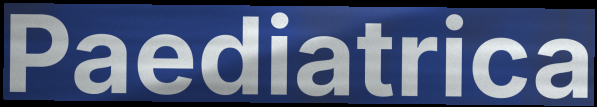
Paediatrica